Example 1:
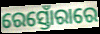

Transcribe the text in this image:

ରେସ୍ତୋଁରାରେ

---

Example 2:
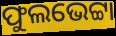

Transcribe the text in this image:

ଫୁଲଭେଟ୍ଟା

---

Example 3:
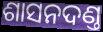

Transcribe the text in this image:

ଶାସନଦଣ୍ତ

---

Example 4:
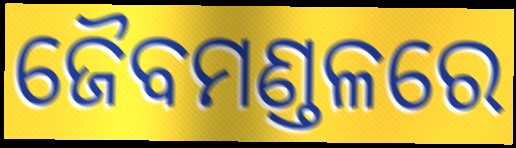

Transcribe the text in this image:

ଜୈବମଣ୍ଡଳରେ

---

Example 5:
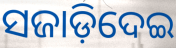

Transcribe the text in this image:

ସଜାଡ଼ିଦେଇ